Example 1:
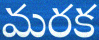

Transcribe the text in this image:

మరక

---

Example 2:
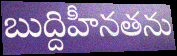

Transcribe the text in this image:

బుద్దిహీనతను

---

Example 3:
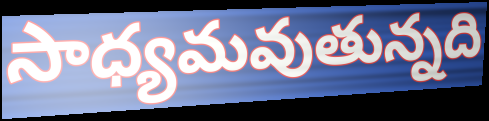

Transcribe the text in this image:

సాధ్యమవుతున్నది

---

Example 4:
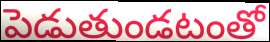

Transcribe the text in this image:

పెడుతుండటంతో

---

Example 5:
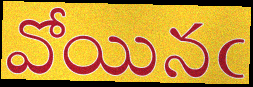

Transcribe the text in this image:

వోయినఁ